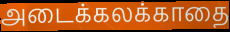
அடைக்கலக்காதை